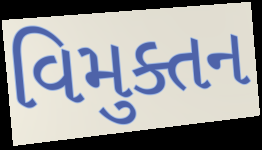
વિમુક્તન